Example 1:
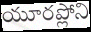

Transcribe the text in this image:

యూరప్లోని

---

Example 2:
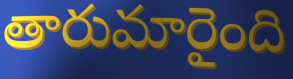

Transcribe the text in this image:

తారుమారైంది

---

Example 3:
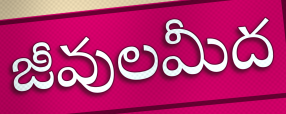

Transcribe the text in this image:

జీవులమీద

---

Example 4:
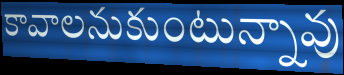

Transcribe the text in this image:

కావాలనుకుంటున్నావు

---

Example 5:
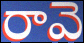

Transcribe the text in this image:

రావె